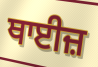
ਥਾਈਜ਼